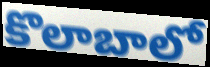
కొలాబాలో